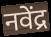
नवेंद्र